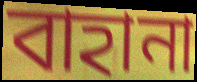
বাহানা